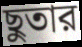
ছুতার